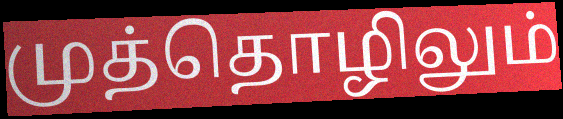
முத்தொழிலும்